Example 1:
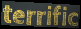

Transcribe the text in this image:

terrific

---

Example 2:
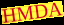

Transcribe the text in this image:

HMDA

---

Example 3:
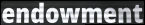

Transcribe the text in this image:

endowment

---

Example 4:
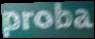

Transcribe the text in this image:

proba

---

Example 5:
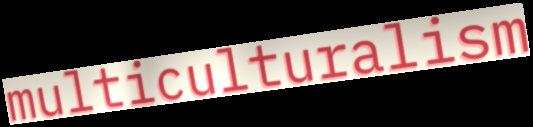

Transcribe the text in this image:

multiculturalism